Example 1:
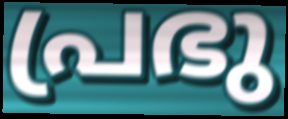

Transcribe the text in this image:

പ്രഭു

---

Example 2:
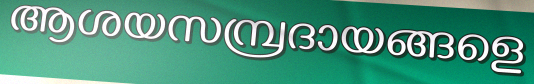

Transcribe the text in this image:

ആശയസമ്പ്രദായങ്ങളെ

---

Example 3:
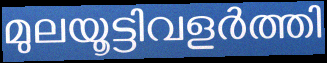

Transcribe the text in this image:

മുലയൂട്ടിവളർത്തി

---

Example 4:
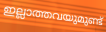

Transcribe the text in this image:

ഇല്ലാത്തവയുമുണ്ട്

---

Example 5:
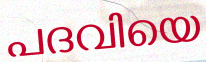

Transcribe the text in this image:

പദവിയെ